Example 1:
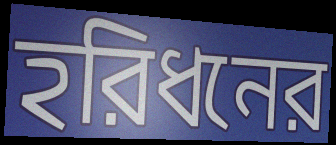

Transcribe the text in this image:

হরিধনের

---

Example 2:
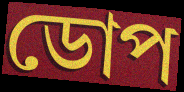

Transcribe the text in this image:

ডোপ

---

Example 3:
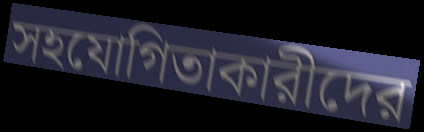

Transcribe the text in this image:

সহযোগিতাকারীদের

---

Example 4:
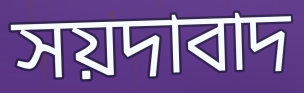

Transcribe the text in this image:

সয়দাবাদ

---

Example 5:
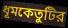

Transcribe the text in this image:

ধূমকেতুটির